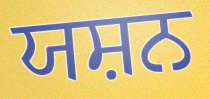
ਯਸ਼ਨ